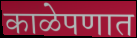
काळेपणात